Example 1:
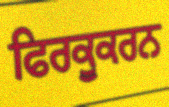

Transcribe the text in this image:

ਫਿਰਕੂਕਰਨ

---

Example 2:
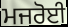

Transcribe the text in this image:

ਮਜਰੋਈ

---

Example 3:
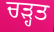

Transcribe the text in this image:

ਚੜ੍ਹਤ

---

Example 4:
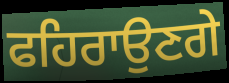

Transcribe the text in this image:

ਫਹਿਰਾਉਣਗੇ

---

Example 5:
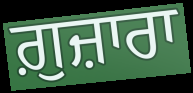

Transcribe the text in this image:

ਗ਼ੁਜ਼ਾਰਾ